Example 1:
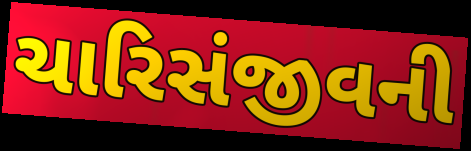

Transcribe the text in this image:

ચારિસંજીવની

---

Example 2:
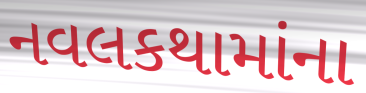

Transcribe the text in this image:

નવલકથામાંના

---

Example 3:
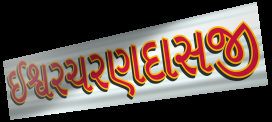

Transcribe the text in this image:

ઈશ્વરચરણદાસજી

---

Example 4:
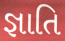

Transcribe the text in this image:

જ્ઞાતિ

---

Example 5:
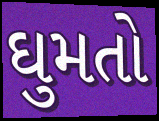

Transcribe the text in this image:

ઘુમતો